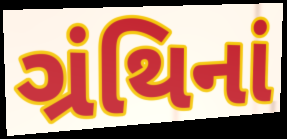
ગ્રંથિનાં